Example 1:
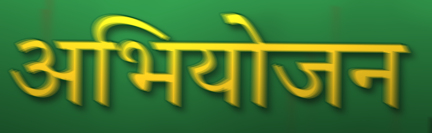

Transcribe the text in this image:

अभियोजन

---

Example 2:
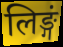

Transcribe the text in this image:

लिङ्गं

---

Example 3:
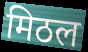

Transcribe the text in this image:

मिठल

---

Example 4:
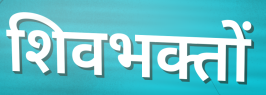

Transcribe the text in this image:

शिवभक्तों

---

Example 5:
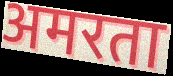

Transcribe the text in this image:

अमरता